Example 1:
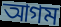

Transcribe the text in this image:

আগম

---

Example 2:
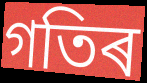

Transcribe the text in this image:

গতিৰ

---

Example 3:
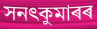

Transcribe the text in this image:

সনৎকুমাৰৰ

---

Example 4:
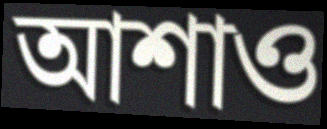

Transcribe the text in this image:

আশাও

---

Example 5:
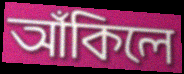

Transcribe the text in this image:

আঁকিলে